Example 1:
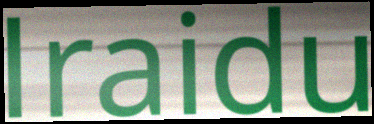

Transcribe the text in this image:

Iraidu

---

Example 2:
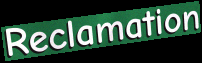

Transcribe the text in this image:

Reclamation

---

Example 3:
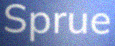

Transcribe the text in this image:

Sprue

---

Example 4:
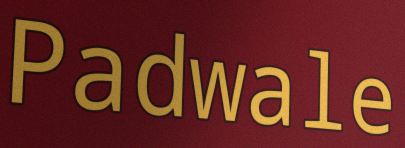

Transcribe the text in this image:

Padwale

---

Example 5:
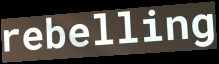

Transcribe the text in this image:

rebelling